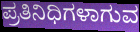
ಪ್ರತಿನಿಧಿಗಳಾಗುವ